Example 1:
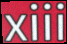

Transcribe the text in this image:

xiii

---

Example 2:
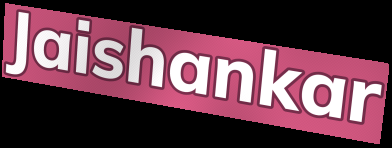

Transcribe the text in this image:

Jaishankar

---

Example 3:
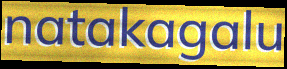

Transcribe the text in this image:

natakagalu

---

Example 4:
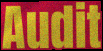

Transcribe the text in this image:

Audit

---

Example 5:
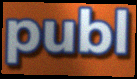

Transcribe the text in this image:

publ